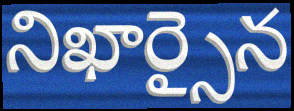
నిఖార్సైన